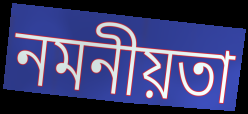
নমনীয়তা